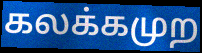
கலக்கமுற